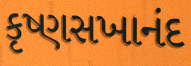
કૃષ્ણસખાનંદ